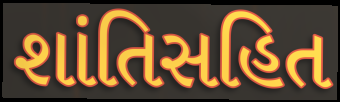
શાંતિસહિત